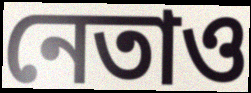
নেতাও